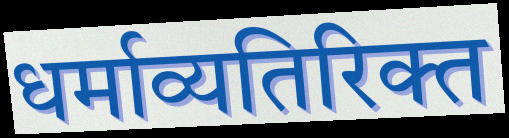
धर्माव्यतिरिक्त